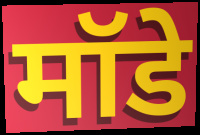
मॉडे